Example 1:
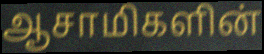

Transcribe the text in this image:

ஆசாமிகளின்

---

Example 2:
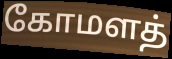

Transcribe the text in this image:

கோமளத்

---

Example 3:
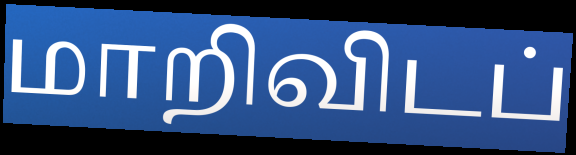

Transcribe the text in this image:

மாறிவிடப்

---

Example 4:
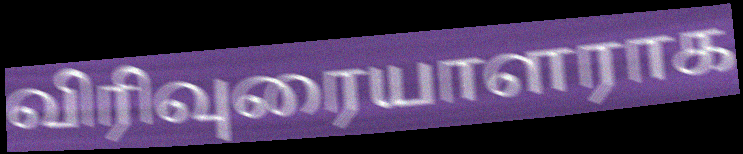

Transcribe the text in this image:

விரிவுரையாளராக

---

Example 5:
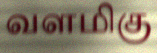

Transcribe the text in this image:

வளமிகு